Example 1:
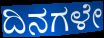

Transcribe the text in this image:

ದಿನಗಳೇ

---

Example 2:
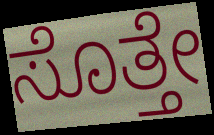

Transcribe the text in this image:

ಸೊತ್ತೇ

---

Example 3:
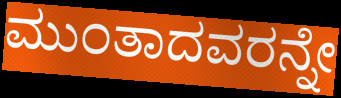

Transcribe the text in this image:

ಮುಂತಾದವರನ್ನೇ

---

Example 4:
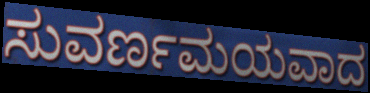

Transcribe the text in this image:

ಸುವರ್ಣಮಯವಾದ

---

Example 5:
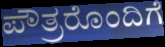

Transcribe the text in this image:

ಪೌತ್ರರೊಂದಿಗೆ